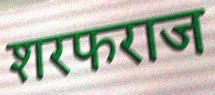
शरफराज